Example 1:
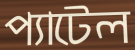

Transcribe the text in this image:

প্যাটেল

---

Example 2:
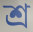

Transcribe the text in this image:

শ্র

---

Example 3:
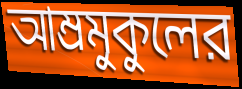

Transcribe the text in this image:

আম্রমুকুলের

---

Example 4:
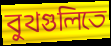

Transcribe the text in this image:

বুথগুলিতে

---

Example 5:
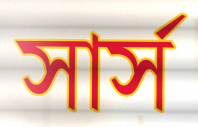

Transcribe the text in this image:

সার্স